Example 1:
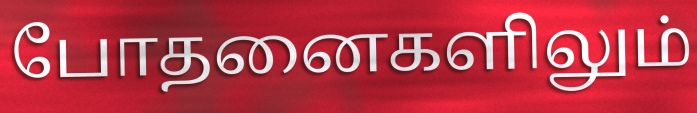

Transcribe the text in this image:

போதனைகளிலும்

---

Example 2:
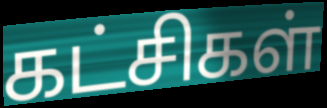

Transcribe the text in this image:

கட்சிகள்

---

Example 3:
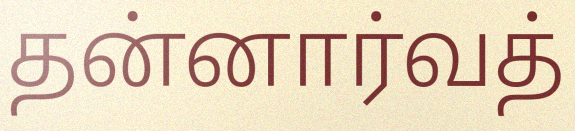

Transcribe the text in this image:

தன்னார்வத்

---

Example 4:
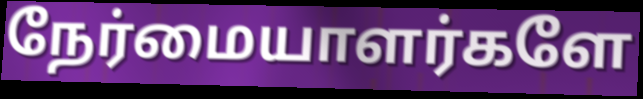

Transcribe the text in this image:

நேர்மையாளர்களே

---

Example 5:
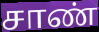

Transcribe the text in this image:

சாண்